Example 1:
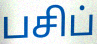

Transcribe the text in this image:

பசிப்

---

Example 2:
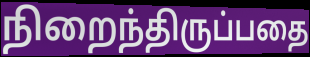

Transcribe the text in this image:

நிறைந்திருப்பதை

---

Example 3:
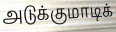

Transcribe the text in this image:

அடுக்குமாடிக்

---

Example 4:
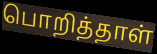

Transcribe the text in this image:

பொறித்தாள்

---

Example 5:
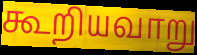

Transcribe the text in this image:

கூறியவாறு